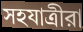
সহযাত্রীরা